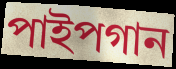
পাইপগান